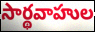
సార్థవాహుల